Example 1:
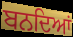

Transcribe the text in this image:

ਬਨਦਿਆਂ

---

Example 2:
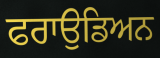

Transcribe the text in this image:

ਫਰਾਉਡਿਅਨ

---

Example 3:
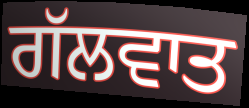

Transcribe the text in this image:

ਗੱਲਵਾਤ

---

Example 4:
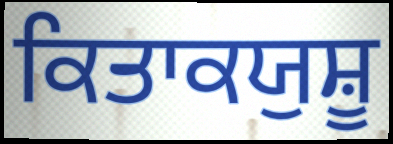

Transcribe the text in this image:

ਕਿਤਾਕਯੁਸ਼ੂ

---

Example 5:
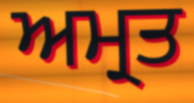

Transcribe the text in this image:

ਅਮ੍ਰਤ